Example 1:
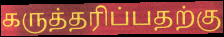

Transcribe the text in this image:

கருத்தரிப்பதற்கு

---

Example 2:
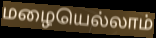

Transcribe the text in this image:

மழையெல்லாம்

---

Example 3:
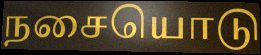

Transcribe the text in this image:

நசையொடு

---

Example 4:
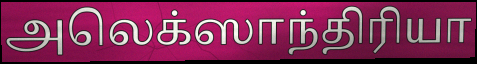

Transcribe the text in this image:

அலெக்ஸாந்திரியா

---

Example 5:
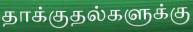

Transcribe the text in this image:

தாக்குதல்களுக்கு